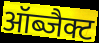
ऑब्जैक्ट